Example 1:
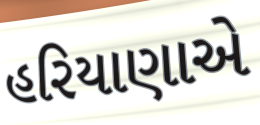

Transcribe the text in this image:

હરિયાણાએ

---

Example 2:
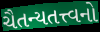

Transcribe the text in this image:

ચૈતન્યતત્ત્વનો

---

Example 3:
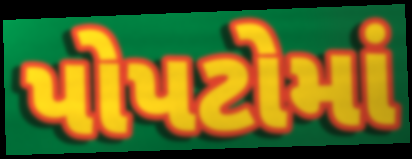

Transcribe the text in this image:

પોપટોમાં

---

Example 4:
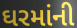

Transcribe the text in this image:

ઘરમાંની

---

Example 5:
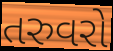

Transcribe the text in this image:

તરુવરો